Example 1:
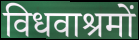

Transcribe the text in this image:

विधवाश्रमों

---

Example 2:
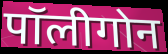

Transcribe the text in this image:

पॉलीगोन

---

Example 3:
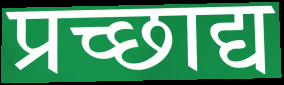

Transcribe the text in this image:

प्रच्छाद्य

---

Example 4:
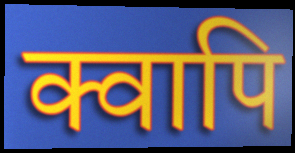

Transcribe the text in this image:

क्वापि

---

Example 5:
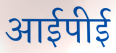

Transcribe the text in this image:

आईपीई